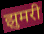
झुमरी